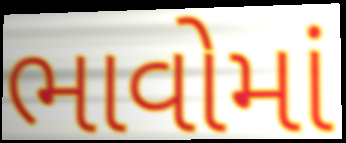
ભાવોમાં